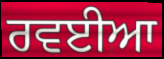
ਰਵਈਆ